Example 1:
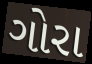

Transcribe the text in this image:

ગોરા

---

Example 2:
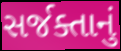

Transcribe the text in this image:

સર્જક્તાનું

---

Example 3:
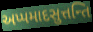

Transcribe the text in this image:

અપ્પમાદસુત્તન્તિ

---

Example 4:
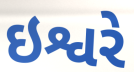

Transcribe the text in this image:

ઇશ્વરે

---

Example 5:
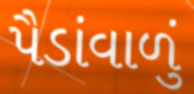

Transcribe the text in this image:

પૈડાંવાળું